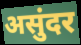
असुंदर